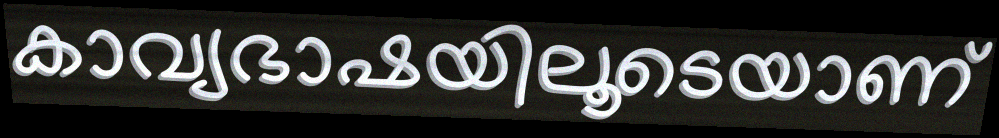
കാവ്യഭാഷയിലൂടെയാണ്